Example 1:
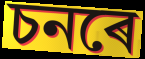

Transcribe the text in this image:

চনৰে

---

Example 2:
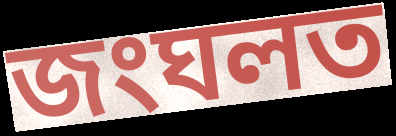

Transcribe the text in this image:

জংঘলত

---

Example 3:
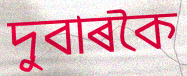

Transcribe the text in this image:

দুবাৰকৈ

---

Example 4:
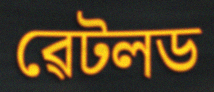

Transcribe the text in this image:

ৱেটলড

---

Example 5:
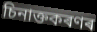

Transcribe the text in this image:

চিনাক্তকৰণৰ